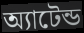
অ্যাটেন্ড